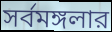
সর্বমঙ্গলার